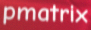
pmatrix